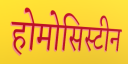
होमोसिस्टीन